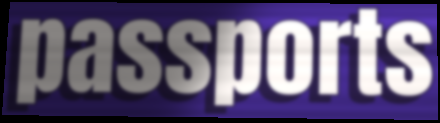
passports